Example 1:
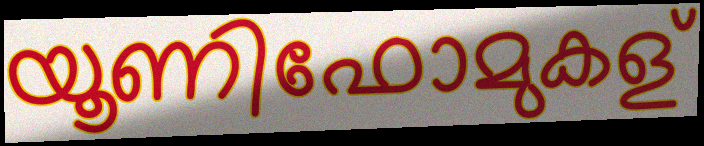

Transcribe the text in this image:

യൂണിഫോമുകള്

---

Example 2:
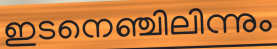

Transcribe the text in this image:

ഇടനെഞ്ചിലിന്നും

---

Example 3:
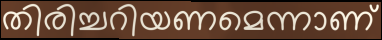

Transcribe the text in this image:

തിരിച്ചറിയണമെന്നാണ്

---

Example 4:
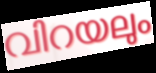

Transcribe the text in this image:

വിറയലും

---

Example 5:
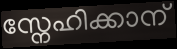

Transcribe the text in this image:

സ്നേഹിക്കാന്